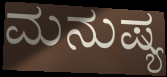
ಮನುಷ್ಯ